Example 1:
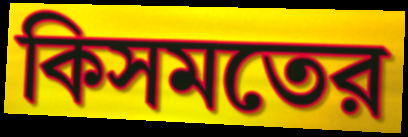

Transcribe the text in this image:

কিসমতের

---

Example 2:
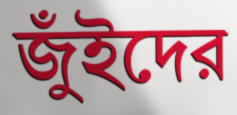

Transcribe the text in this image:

জুঁইদের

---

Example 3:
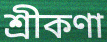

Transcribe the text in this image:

শ্রীকণা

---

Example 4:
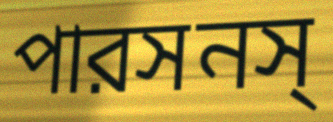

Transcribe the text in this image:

পারসনস্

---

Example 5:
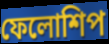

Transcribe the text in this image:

ফেলোশিপ